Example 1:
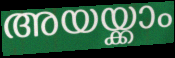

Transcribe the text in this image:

അയയ്ക്കാം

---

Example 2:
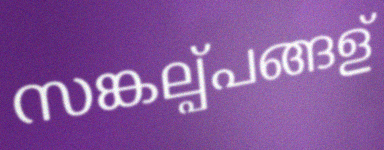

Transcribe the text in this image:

സങ്കല്പ്പങ്ങള്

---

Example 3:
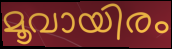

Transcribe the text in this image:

മൂവായിരം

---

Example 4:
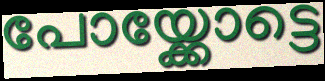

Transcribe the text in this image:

പോയ്ക്കോട്ടെ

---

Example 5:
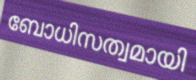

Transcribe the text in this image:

ബോധിസത്വമായി